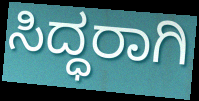
ಸಿದ್ಧರಾಗಿ